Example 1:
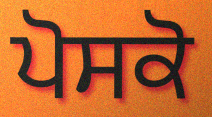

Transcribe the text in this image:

ਪੋਸਕੋ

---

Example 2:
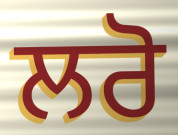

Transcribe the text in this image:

ਲਰੋ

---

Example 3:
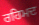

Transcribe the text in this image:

ਰਹਿਮਦ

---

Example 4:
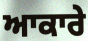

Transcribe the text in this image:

ਆਕਾਰੇ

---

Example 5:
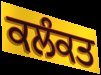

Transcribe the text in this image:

ਕਲੰਕਤ